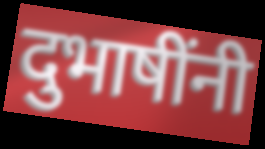
दुभाषींनी